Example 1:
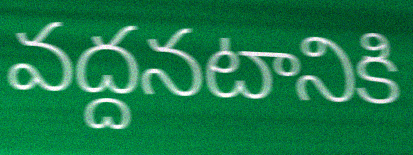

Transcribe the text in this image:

వద్దనటానికి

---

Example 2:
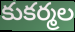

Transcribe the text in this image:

కుకర్మల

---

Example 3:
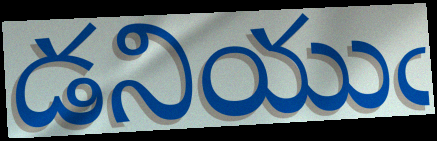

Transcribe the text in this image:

డనియుఁ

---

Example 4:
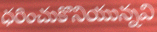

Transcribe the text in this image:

ధరించుకొనియున్నవి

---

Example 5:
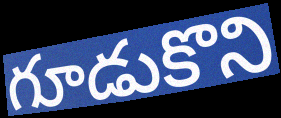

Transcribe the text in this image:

గూడుకొని